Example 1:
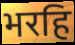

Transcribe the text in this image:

भरहि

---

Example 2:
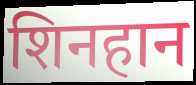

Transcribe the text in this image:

शिनहान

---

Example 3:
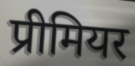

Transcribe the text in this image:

प्रीमियर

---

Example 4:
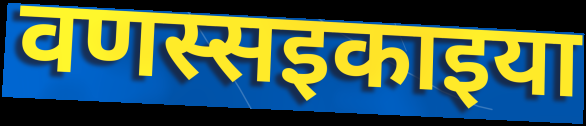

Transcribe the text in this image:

वणस्सइकाइया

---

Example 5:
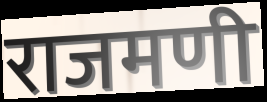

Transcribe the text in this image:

राजमणी